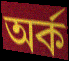
অর্ক